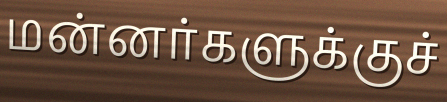
மன்னர்களுக்குச்